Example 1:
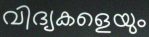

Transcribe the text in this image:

വിദ്യകളെയും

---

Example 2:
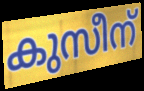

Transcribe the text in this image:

കുസീന്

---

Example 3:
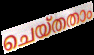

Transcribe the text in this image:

ചെയ്തതാം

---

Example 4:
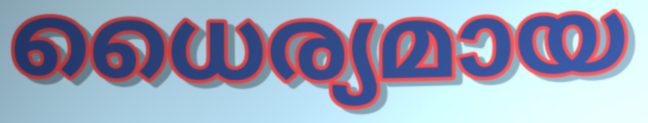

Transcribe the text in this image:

ധൈര്യമായ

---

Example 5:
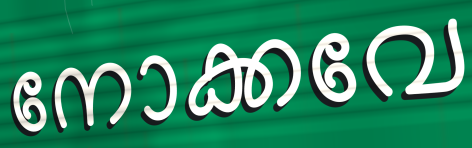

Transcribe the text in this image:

നോക്കവേ